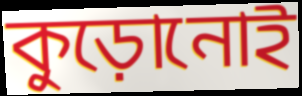
কুড়োনোই